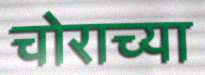
चोराच्या